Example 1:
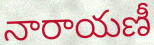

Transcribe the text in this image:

నారాయణీ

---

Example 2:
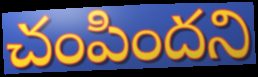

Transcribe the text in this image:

చంపిందని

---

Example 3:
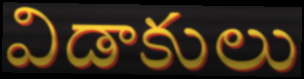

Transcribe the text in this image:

విడాకులు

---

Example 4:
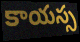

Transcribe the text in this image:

కాయస్స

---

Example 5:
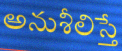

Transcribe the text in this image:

అనుశీలిస్తే